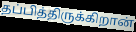
தப்பித்திருக்கிறான்